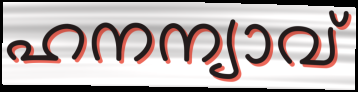
ഹനന്യാവ്